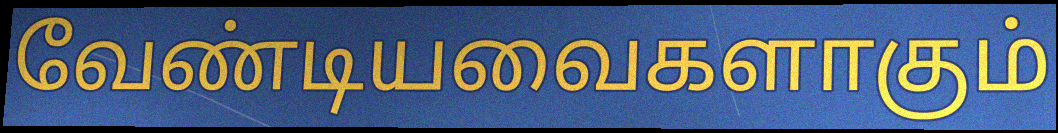
வேண்டியவைகளாகும்